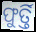
ଫୁର୍ତ୍ତି